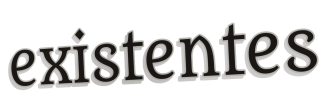
existentes